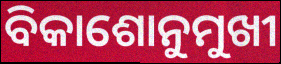
ବିକାଶୋନୁମୁଖୀ